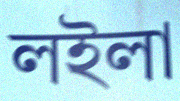
লইলা